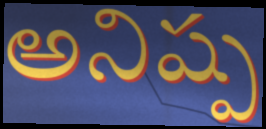
అనిష్ప